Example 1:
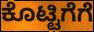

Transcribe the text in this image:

ಕೊಟ್ಟಿಗೆಗೆ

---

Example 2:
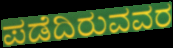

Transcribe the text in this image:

ಪಡೆದಿರುವವರ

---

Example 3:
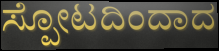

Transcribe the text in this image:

ಸ್ಪೋಟದಿಂದಾದ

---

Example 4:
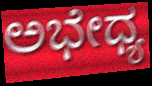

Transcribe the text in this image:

ಅಭೇಧ್ಯ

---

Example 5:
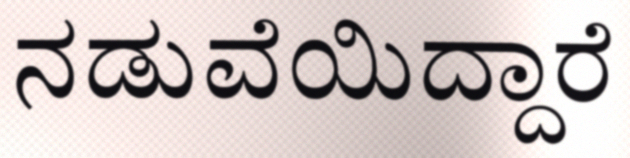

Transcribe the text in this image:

ನಡುವೆಯಿದ್ದಾರೆ